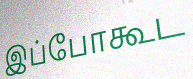
இப்போகூட